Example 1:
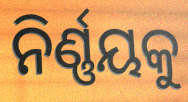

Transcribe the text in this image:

ନିର୍ଣ୍ଣୟକୁ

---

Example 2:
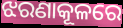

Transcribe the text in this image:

ଝରଣାକୂଳରେ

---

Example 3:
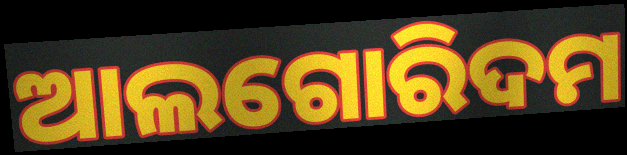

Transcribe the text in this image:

ଆଲଗୋରିଦମ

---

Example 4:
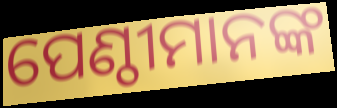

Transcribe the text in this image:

ପେଣ୍ଠୀମାନଙ୍କ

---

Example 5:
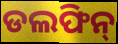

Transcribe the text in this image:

ଡଲଫିନ୍